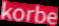
korbe